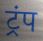
ट्रंप